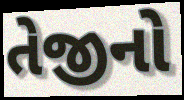
તેજીનો